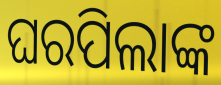
ଘରପିଲାଙ୍କ